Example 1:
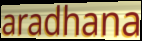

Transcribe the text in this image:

aradhana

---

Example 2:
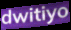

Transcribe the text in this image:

dwitiyo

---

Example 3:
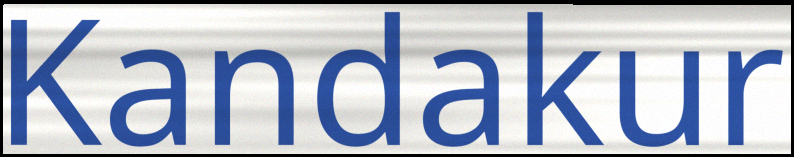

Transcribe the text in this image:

Kandakur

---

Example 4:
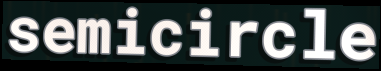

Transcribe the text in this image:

semicircle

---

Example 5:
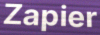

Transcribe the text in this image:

Zapier